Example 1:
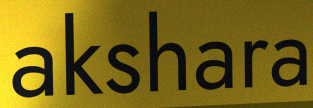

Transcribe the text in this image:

akshara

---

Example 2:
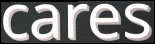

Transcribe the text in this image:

cares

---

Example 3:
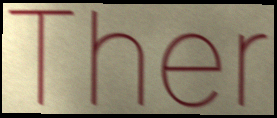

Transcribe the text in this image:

Ther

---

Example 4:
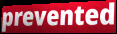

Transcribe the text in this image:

prevented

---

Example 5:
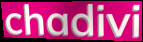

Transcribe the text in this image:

chadivi